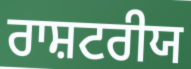
ਰਾਸ਼ਟਰੀਯ